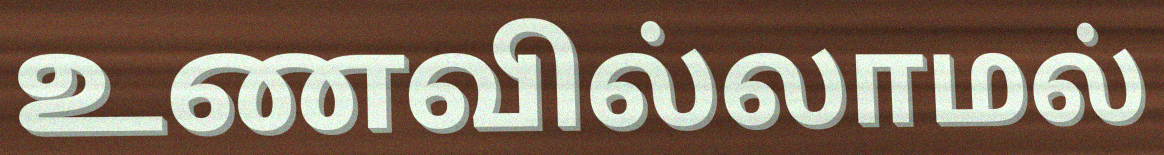
உணவில்லாமல்